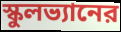
স্কুলভ্যানের